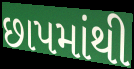
છાપમાંથી